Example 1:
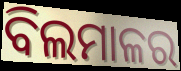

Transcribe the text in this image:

ବିଲମାଳର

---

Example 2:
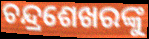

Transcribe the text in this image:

ଚନ୍ଦ୍ରଶେଖରଙ୍କୁ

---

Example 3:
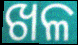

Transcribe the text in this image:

ଖଳ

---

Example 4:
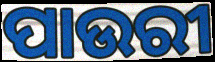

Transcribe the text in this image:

ପାଉରୀ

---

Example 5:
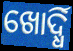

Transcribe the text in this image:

ଖୋର୍ଦ୍ଧି